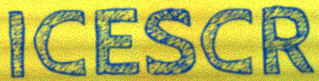
ICESCR